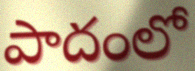
పాదంలో